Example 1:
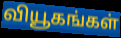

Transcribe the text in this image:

வியூகங்கள்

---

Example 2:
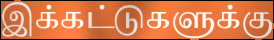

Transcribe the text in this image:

இக்கட்டுகளுக்கு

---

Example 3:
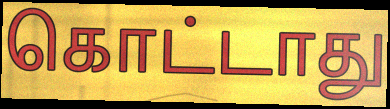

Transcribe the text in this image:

கொட்டாது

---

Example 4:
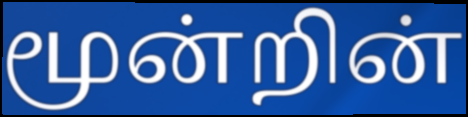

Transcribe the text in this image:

மூன்றின்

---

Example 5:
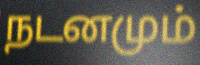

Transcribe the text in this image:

நடனமும்